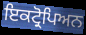
ਇਕਟ੍ਰੋਪਿਅਨ